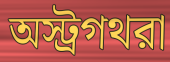
অস্ট্রগথরা